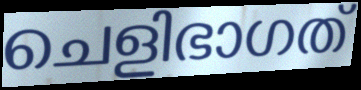
ചെളിഭാഗത്